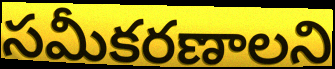
సమీకరణాలని